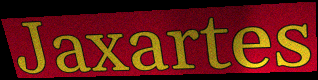
Jaxartes